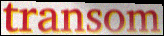
transom